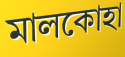
মালকোহা